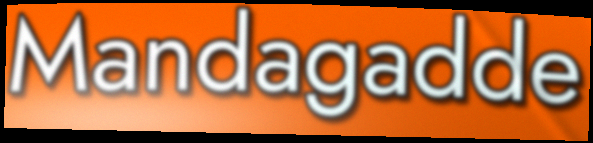
Mandagadde